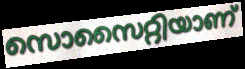
സൊസൈറ്റിയാണ്